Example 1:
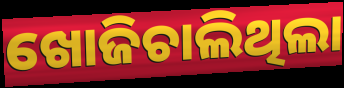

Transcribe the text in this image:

ଖୋଜିଚାଲିଥିଲା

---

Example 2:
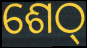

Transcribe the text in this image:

ଶେଠ୍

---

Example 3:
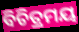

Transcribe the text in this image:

ବିଚିତ୍ରମୟ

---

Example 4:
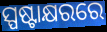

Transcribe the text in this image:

ସ୍ପଷ୍ଟାକ୍ଷରରେ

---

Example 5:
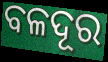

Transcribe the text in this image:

ବଳଦୂର